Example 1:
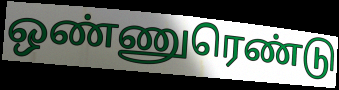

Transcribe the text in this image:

ஒண்ணுரெண்டு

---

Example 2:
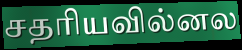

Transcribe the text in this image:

சதரியவில்னல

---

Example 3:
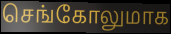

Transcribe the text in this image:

செங்கோலுமாக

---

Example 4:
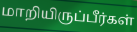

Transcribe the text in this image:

மாறியிருப்பீர்கள்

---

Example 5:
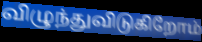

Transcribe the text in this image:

விழுந்துவிடுகிறோம்